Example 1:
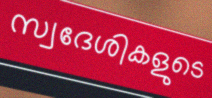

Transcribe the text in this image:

സ്വദേശികളുടെ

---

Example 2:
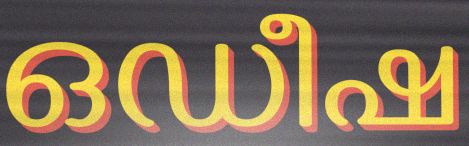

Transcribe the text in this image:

ഒഡീഷ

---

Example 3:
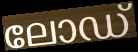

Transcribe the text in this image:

ലോഡ്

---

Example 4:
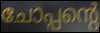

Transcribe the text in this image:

ചോപ്പന്റെ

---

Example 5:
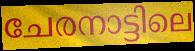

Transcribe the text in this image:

ചേരനാട്ടിലെ